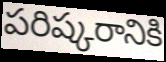
పరిష్కరానికి